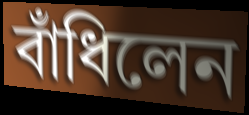
বাঁধিলেন